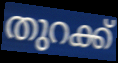
തുറക്ക്